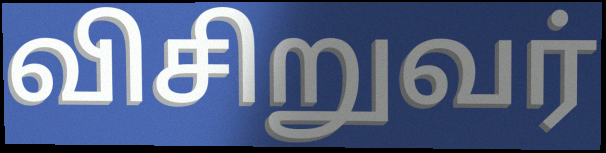
விசிறுவர்